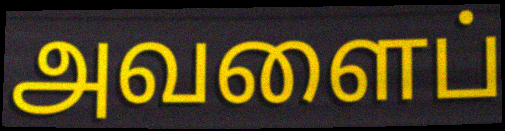
அவளைப்